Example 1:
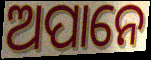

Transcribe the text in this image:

ଅପାନେ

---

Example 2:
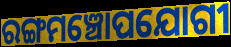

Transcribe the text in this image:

ରଙ୍ଗମଞ୍ଚୋପଯୋଗୀ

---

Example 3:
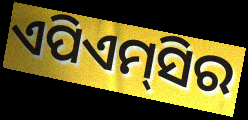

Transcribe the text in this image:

ଏପିଏମ୍‌ସିର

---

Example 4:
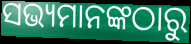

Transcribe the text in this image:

ସଭ୍ୟମାନଙ୍କଠାରୁ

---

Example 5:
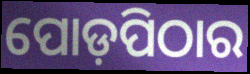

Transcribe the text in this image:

ପୋଡ଼ପିଠାର